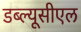
डब्ल्यूसीएल